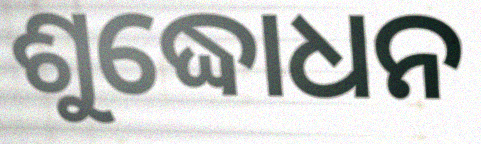
ଶୁଦ୍ଧୋଧନ